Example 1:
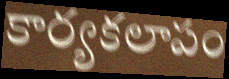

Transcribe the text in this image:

కార్యకలాపం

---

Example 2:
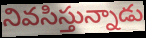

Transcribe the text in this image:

నివసిస్తున్నాడు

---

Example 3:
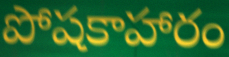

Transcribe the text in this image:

పోషకాహారం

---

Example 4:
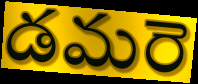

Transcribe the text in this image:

డమరె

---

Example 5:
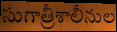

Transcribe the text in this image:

సుగాత్రీశాలీనుల